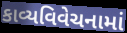
કાવ્યવિવેચનામાં